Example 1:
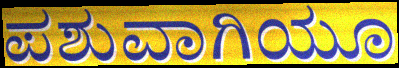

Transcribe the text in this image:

ಪಶುವಾಗಿಯೂ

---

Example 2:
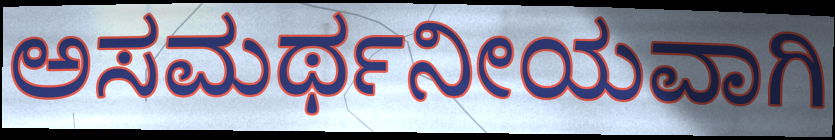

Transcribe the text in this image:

ಅಸಮರ್ಥನೀಯವಾಗಿ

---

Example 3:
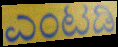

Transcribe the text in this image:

ಎಂಟಡಿ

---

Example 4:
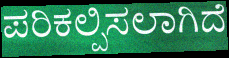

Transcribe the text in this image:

ಪರಿಕಲ್ಪಿಸಲಾಗಿದೆ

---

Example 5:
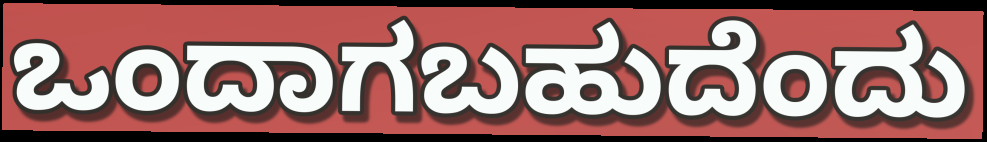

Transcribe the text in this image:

ಒಂದಾಗಬಹುದೆಂದು